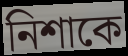
নিশাকে